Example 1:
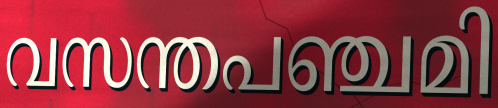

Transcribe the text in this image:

വസന്തപഞ്ചമി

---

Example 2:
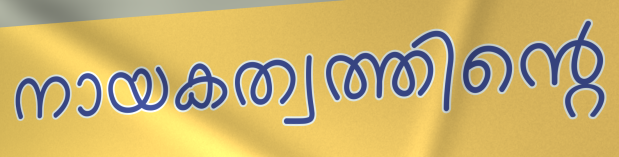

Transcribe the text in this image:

നായകത്വത്തിന്റെ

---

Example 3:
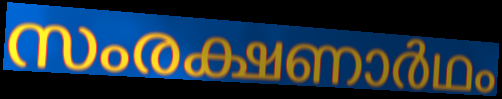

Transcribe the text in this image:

സംരക്ഷണാർഥം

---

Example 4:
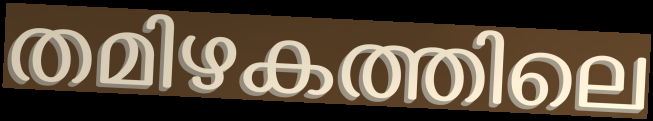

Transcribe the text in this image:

തമിഴകത്തിലെ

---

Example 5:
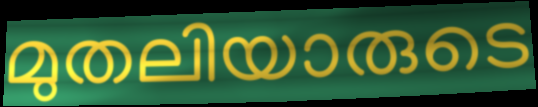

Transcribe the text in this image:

മുതലിയാരുടെ